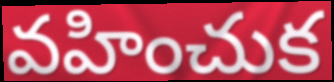
వహించుక